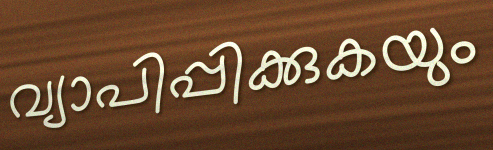
വ്യാപിപ്പിക്കുകയും